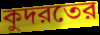
কুদরতের